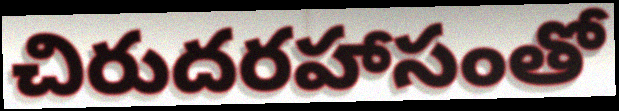
చిరుదరహాసంతో